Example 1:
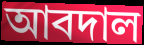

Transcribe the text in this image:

আবদাল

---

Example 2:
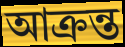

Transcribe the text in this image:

আক্রন্ত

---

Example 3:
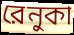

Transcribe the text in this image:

রেনুকা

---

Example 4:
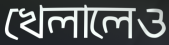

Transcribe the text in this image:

খেলালেও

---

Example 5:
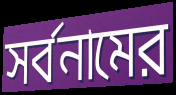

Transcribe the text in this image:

সর্বনামের